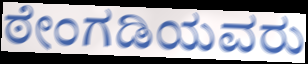
ಠೇಂಗಡಿಯವರು